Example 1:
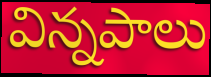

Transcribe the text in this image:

విన్నపాలు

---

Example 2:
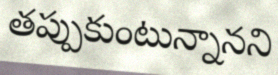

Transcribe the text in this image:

తప్పుకుంటున్నానని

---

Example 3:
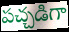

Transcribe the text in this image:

పచ్చడిగా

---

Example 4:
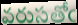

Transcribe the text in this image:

వరుసతోఁ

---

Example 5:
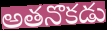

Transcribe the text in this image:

అతనొకడు